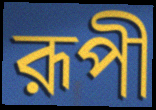
রূপী